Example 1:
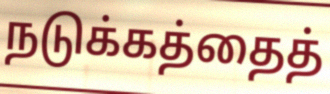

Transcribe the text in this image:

நடுக்கத்தைத்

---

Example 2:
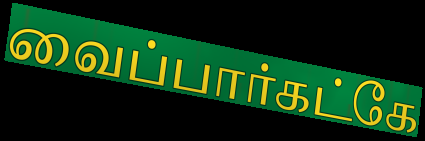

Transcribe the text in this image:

வைப்பார்கட்கே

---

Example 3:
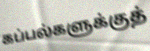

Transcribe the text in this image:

கப்பல்களுக்குத்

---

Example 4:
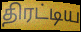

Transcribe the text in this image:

திரட்டிய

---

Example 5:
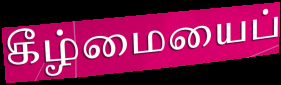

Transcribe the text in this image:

கீழ்மையைப்